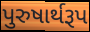
પુરુષાર્થરૂપ